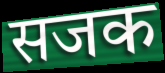
सजक